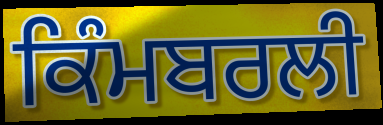
ਕਿੰਮਬਰਲੀ